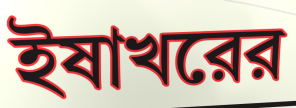
ইষাখরের